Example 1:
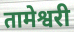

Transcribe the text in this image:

तामेश्वरी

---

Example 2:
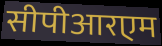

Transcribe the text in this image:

सीपीआरएम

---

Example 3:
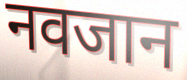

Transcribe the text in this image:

नवजान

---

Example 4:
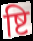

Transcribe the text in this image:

ष्टि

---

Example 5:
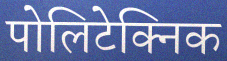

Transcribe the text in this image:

पोलिटेक्निक